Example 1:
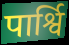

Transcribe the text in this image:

पार्श्वि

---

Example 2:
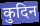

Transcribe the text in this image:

कुदिन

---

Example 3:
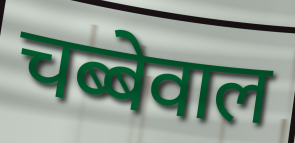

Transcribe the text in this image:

चब्बेवाल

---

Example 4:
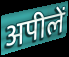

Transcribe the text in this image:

अपीलें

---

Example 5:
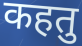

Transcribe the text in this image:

कहतु